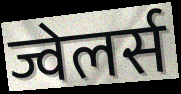
ज्वेलर्स